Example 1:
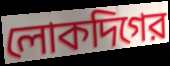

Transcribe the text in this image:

লোকদিগের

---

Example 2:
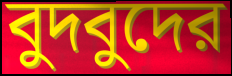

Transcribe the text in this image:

বুদবুদের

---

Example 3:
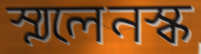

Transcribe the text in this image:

স্মলেনস্ক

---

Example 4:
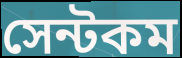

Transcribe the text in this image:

সেন্টকম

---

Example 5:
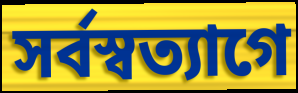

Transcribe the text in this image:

সর্বস্বত্যাগে